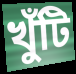
খুঁটি